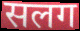
सलग